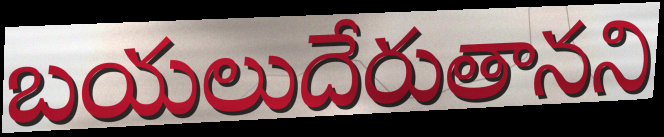
బయలుదేరుతానని